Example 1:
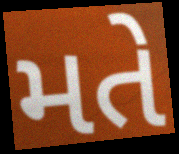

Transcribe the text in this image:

મતે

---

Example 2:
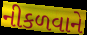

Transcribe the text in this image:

નીકળવાને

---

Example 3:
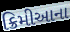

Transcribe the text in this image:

ક્રિમીઆના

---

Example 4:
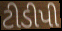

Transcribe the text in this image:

ટીડીપી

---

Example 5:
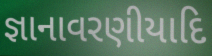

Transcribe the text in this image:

જ્ઞાનાવરણીયાદિ